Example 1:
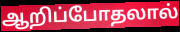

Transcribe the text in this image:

ஆறிப்போதலால்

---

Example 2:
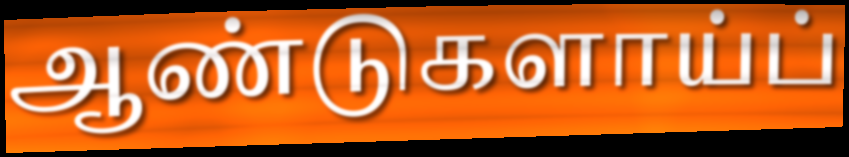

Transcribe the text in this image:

ஆண்டுகளாய்ப்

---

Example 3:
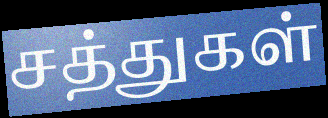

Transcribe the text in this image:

சத்துகள்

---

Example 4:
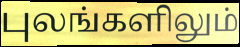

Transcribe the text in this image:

புலங்களிலும்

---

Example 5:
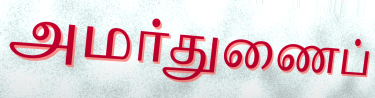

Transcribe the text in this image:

அமர்துணைப்